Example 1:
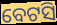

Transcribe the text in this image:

ବେଟସି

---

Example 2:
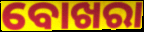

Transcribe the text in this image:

ବୋଖରା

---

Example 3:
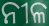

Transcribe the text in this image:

ନୀଳ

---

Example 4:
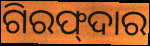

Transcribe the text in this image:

ଗିରଫ୍‍ଦାର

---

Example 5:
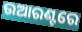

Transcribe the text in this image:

ଉଆରଣ୍ଟରେ